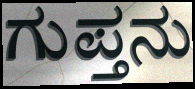
ಗುಪ್ತನು